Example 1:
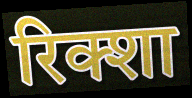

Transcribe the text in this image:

रिक्‍शा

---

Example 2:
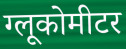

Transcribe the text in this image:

ग्लूकोमीटर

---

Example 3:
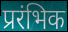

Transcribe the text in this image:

प्ररंभिक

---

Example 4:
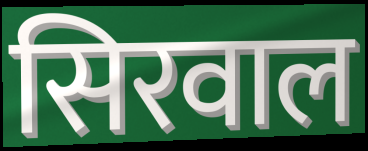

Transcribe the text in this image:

सिरवाल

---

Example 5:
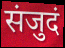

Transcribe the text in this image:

संजुदं